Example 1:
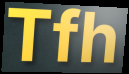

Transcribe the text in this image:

Tfh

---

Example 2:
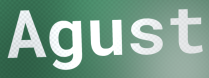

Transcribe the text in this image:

Agust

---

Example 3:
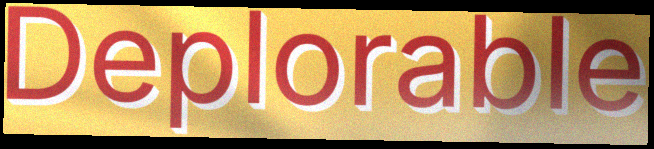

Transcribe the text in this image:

Deplorable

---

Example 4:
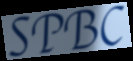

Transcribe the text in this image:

SPBC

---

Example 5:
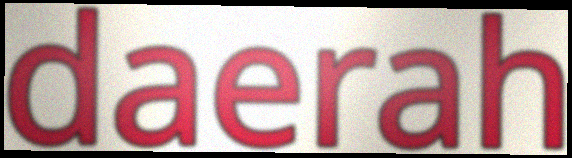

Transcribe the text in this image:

daerah